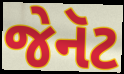
જેનૅટ